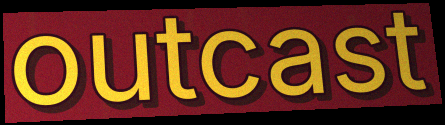
outcast